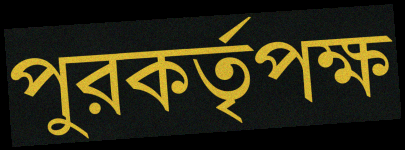
পুরকর্তৃপক্ষ